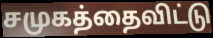
சமுகத்தைவிட்டு